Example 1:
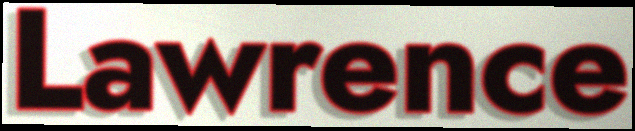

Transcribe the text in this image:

Lawrence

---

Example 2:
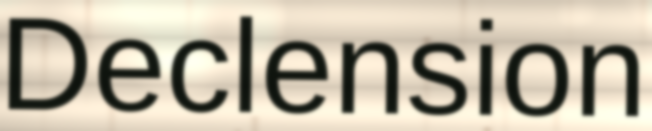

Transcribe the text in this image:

Declension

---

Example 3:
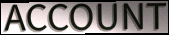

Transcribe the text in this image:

ACCOUNT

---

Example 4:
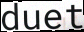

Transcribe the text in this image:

duet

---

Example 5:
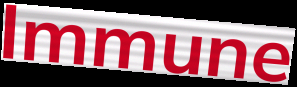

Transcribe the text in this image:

Immune